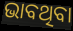
ଭାବଥିବା